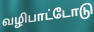
வழிபாட்டோடு